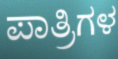
ಪಾತ್ರಿಗಳ